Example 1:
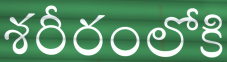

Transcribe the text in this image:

శరీరంలోకి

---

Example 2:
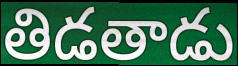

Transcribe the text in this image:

తిడతాడు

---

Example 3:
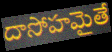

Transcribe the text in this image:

దాసోహమైతే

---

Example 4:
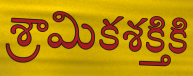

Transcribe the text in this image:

శ్రామికశక్తికి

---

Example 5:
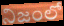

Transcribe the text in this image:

నిజంలో